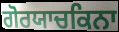
ਗੋਰਯਾਚਕਿਨਾ